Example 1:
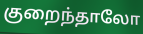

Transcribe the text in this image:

குறைந்தாலோ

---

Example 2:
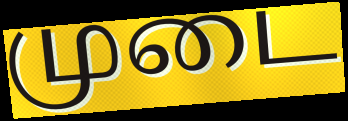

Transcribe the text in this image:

முடை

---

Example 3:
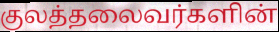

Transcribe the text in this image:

குலத்தலைவர்களின்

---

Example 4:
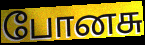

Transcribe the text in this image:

போனசு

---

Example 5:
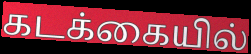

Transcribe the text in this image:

கடக்கையில்